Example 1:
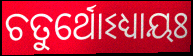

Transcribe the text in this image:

ଚତୁର୍ଥୋଽଧ୍ୟାୟଃ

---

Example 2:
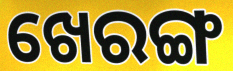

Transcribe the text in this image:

ଖେରଙ୍ଗ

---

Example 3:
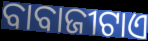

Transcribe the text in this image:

ବାବାଜୀଟାଏ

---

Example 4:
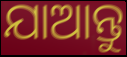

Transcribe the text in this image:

ଯାଆନ୍ତୁ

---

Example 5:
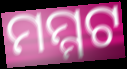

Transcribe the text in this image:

ମମ୍ମଟ